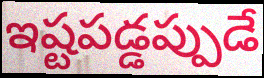
ఇష్టపడ్డప్పుడే